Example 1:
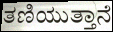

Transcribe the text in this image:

ತಣಿಯುತ್ತಾನೆ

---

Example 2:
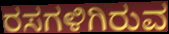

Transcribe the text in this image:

ರಸಗಳಿಗಿರುವ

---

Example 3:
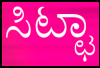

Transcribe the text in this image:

ಸಿಟ್ಟಾ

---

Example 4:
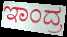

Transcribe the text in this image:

ಇಾಂದ್ರ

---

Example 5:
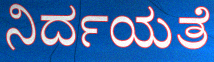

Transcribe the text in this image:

ನಿರ್ದಯತೆ